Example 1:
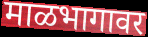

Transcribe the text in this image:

माळभागावर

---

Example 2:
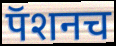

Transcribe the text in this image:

पॅशनच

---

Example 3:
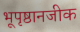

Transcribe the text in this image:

भूपृष्ठानजीक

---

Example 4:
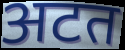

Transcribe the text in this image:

अटत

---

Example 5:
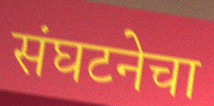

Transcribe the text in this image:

संघटनेचा